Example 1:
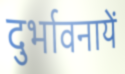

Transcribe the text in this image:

दुर्भावनायें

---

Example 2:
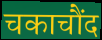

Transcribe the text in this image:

चकाचौंद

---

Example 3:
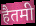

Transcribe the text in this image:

हैतमी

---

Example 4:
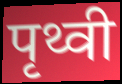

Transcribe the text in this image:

पृथ्वी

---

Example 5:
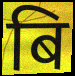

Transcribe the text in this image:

बि